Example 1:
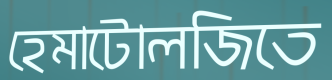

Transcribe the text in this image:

হেমাটোলজিতে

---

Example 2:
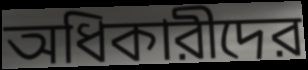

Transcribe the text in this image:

অধিকারীদের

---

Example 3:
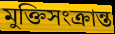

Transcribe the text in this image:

মুক্তিসংক্রান্ত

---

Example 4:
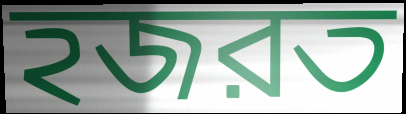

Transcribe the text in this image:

হজরত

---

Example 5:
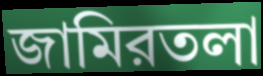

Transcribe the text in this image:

জামিরতলা